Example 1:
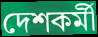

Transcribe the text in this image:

দেশকর্মী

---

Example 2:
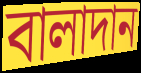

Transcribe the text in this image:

বালাদান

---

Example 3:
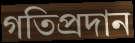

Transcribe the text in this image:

গতিপ্রদান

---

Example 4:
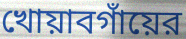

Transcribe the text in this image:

খোয়াবগাঁয়ের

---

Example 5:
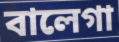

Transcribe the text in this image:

বালেগা